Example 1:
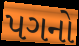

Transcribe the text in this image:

પગનો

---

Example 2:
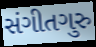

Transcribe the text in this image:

સંગીતગુરુ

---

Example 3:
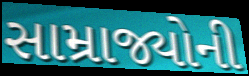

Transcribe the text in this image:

સામ્રાજ્યોની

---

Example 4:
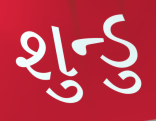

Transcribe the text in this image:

શુન્ડુ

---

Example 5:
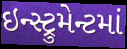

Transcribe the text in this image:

ઇન્સ્ટ્રુમેન્ટમાં